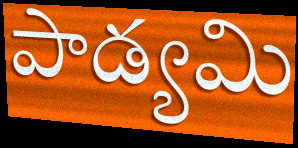
పాడ్యమి